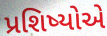
પ્રશિષ્યોએ